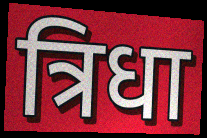
त्रिधा